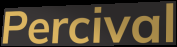
Percival